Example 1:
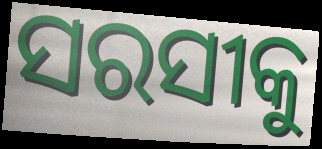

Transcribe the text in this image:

ସରସୀକୁ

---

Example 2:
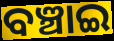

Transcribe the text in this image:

ବଞ୍ଚାଇ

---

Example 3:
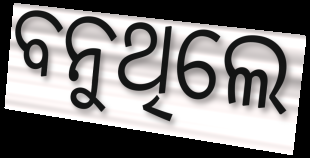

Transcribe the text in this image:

ବନୁଥିଲେ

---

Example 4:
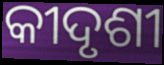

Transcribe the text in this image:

କୀଦୃଶୀ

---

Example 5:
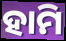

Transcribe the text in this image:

ହାମି